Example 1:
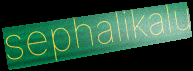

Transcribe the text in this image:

sephalikalu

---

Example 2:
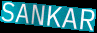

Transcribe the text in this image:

SANKAR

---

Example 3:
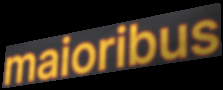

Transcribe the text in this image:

maioribus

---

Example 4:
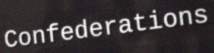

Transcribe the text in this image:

Confederations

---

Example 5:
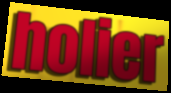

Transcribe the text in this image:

holier